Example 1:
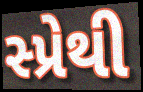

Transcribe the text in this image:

સ્પ્રેથી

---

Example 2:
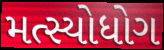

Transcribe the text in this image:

મત્સ્યોધોગ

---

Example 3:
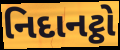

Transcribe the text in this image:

નિદાનટ્ઠો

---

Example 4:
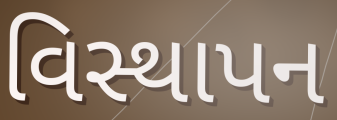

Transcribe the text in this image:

વિસ્થાપન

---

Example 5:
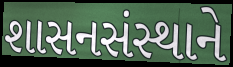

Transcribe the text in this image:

શાસનસંસ્થાને